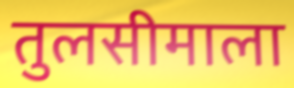
तुलसीमाला